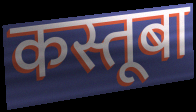
कस्तूबा